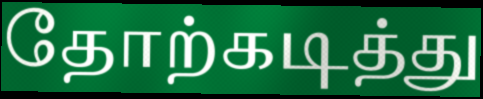
தோற்கடித்து